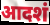
आदशं